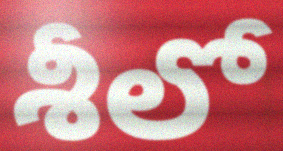
శీలో